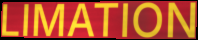
LIMATION